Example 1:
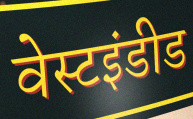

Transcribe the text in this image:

वेस्टइंडीड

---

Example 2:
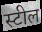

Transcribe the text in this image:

स्टील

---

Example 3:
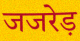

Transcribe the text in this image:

जजरेड़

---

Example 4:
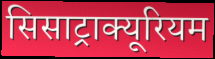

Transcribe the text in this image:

सिसाट्राक्यूरियम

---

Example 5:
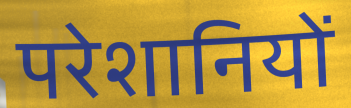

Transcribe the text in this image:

परेशानियों